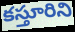
కస్తూరిని